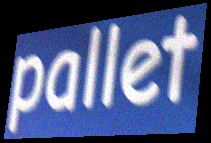
pallet